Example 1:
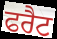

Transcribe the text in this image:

ਫਰੈਟ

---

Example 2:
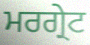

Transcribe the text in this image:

ਮਰਗ੍ਰੇਟ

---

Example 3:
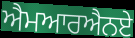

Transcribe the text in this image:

ਐਮਆਰਐਨਏ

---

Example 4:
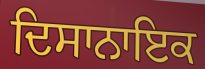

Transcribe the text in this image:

ਦਿਸਾਨਾਇਕ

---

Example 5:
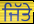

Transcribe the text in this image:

ਜਿੱਤੇ